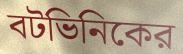
বটভিনিকের